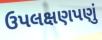
ઉપલક્ષણપણું